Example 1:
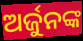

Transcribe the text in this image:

ଅର୍ଜୁନଙ୍କ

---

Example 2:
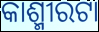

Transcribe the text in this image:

କାଶ୍ମୀରଟା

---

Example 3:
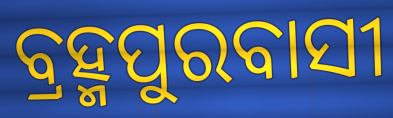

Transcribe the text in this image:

ବ୍ରହ୍ମପୁରବାସୀ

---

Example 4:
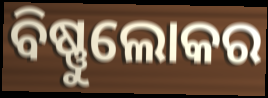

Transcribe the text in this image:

ବିଷ୍ଣୁଲୋକର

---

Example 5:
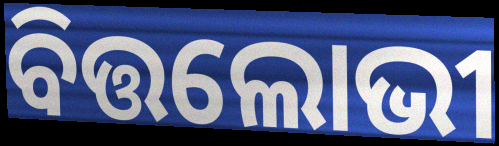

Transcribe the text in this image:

ବିତ୍ତଲୋଭୀ